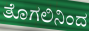
ತೊಗಲಿನಿಂದ